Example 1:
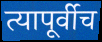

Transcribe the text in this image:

त्यापूर्वीच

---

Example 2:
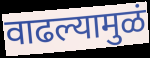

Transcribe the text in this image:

वाढल्यामुळं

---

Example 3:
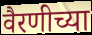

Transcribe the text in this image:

वैरणीच्या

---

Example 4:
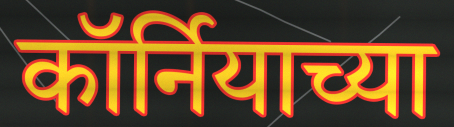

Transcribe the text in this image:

कॉर्नियाच्या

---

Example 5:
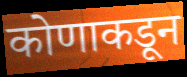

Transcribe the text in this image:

कोणाकडून